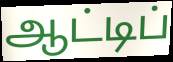
ஆட்டிப்